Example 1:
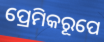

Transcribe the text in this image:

ପ୍ରେମିକରୂପେ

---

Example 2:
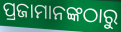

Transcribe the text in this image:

ପ୍ରଜାମାନଙ୍କଠାରୁ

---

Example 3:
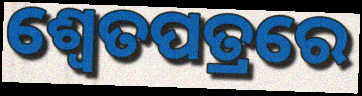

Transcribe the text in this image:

ଶ୍ଵେତପତ୍ରରେ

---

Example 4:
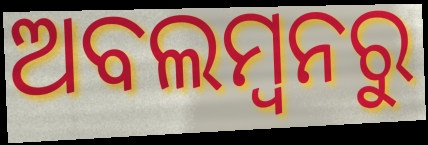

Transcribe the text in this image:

ଅବଲମ୍ବନରୁ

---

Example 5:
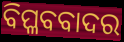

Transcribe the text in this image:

ବିପ୍ଳବବାଦର